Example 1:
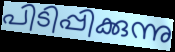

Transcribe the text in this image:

പിടിപ്പിക്കുന്നു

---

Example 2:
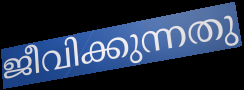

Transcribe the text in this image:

ജീവിക്കുന്നതു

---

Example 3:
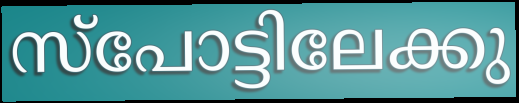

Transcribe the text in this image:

സ്പോട്ടിലേക്കു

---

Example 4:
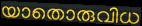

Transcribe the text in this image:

യാതൊരുവിധ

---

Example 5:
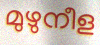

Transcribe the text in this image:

മുഴുനീള